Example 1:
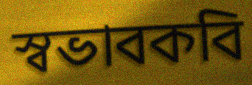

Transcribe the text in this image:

স্বভাবকবি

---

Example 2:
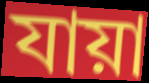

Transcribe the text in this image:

যায়া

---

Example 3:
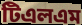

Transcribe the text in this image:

টিএলএম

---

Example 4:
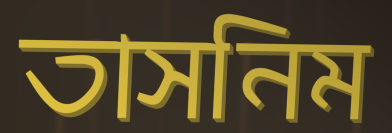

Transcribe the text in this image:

তাসনিম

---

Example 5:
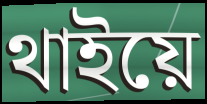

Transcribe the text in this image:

থাইয়ে